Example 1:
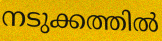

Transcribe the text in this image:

നടുക്കത്തിൽ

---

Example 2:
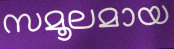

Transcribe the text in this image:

സമൂലമായ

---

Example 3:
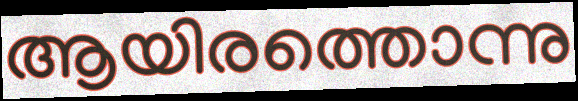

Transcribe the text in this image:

ആയിരത്തൊന്നു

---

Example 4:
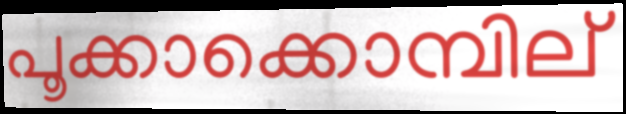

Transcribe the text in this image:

പൂക്കാക്കൊമ്പില്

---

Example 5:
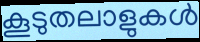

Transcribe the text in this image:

കൂടുതലാളുകൾ